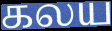
கலய